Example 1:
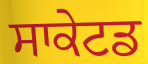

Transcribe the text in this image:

ਸਾਕੇਟਡ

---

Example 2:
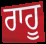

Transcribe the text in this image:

ਰਾਹੂ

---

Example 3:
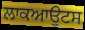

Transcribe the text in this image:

ਲਾਕਆਉਟਸ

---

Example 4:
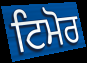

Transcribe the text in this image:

ਟਿਮੋਰ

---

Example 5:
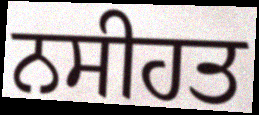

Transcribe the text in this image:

ਨਸੀਹਤ